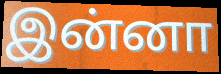
இன்னா